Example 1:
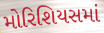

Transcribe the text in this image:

મોરિશિયસમાં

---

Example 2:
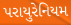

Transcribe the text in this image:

પરાયુરેનિયમ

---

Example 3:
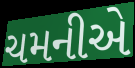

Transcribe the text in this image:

ચમનીએ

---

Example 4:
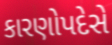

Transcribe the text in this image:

કારણોપદેસે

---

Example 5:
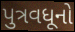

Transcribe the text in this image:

પુત્રવધૂનો